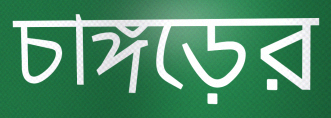
চাঙ্গড়ের